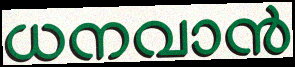
ധനവാൻ